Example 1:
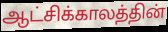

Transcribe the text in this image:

ஆட்சிக்காலத்தின்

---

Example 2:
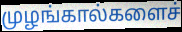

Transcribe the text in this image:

முழங்கால்களைச்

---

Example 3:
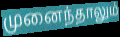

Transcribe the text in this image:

முனைந்தாலும்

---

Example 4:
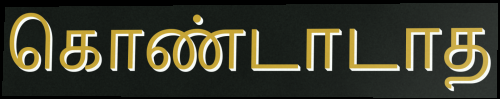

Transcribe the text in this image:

கொண்டாடாத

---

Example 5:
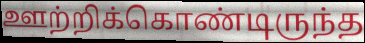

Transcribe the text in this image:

ஊற்றிக்கொண்டிருந்த